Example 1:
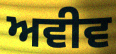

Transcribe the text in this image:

ਅਵੀਵ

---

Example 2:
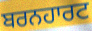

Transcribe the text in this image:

ਬਰਨਹਾਰਟ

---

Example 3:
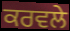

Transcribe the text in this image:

ਕਰਵਲੇ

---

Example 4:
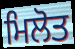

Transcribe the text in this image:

ਮਿਲੋਤ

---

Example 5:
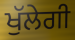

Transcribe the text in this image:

ਖੁੱਲੇਗੀ